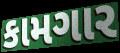
કામગાર